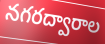
నగరద్వారాల